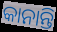
କାନାନ୍ତି